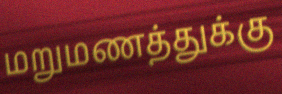
மறுமணத்துக்கு